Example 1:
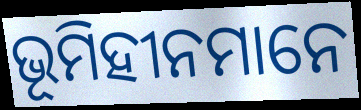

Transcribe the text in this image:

ଭୂମିହୀନମାନେ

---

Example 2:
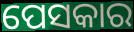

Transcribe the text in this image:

ପେସକାର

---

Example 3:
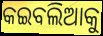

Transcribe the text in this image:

କଇବଲିଆକୁ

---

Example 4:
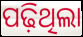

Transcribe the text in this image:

ପଢ଼ିଥିଲା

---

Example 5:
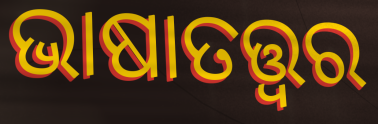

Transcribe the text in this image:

ଭାଷାତତ୍ତ୍ଵର